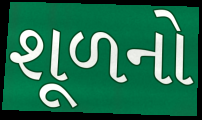
શૂળનો